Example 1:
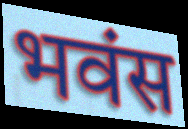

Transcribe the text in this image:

भवंस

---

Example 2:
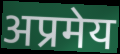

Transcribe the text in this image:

अप्रमेय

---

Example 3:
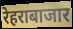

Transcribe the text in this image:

रेहराबाजार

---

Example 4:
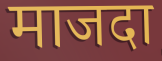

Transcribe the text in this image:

माजदा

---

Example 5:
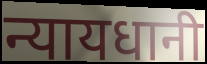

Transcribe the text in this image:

न्यायधानी